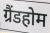
ग्रैंडहोम